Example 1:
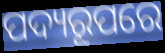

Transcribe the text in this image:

ପଦ୍ୟରୂପରେ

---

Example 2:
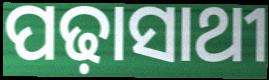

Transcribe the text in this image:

ପଢ଼ାସାଥୀ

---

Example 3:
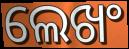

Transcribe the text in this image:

ଲେଖଂ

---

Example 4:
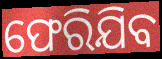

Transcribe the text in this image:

ଫେରିଯିବ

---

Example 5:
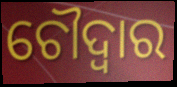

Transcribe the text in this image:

ଚୌଦ୍ବାର